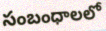
సంబంధాలలో